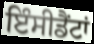
ਇੰਸੀਡੈਂਟਾਂ